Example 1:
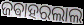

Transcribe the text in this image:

ଜଵାହରଲାଲ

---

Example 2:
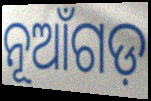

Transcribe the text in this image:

ନୂଆଁଗଡ଼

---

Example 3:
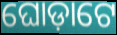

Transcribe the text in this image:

ଘୋଡ଼ାଟେ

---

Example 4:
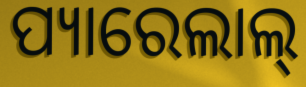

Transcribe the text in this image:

ପ୍ୟାରେଲାଲ୍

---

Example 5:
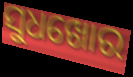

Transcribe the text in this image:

ସୁଧଖୋର